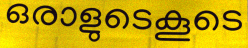
ഒരാളുടെകൂടെ